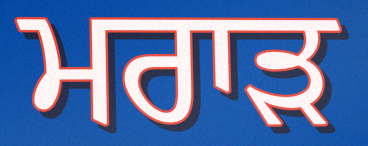
ਮਰਾੜ